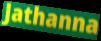
Jathanna